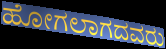
ಹೋಗಲಾಗದವರು